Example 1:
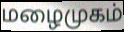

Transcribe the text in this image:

மழைமுகம்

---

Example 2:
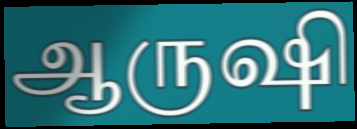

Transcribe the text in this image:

ஆருஷி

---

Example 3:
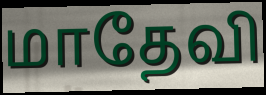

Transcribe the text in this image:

மாதேவி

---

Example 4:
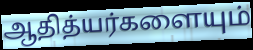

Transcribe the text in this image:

ஆதித்யர்களையும்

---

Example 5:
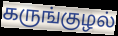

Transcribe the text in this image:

கருங்குழல்